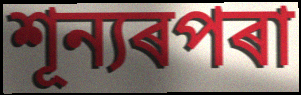
শূন্যৰপৰা